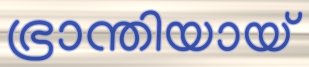
ഭ്രാന്തിയായ്